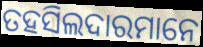
ତହସିଲଦାରମାନେ